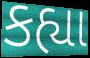
કહ્યા